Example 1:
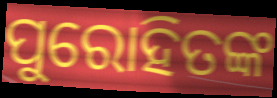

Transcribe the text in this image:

ପୁରୋହିତଙ୍କ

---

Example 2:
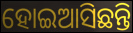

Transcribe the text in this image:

ହୋଇଆସିଛନ୍ତି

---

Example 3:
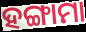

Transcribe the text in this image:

ହଙ୍ଗାମା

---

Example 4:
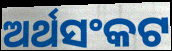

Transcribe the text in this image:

ଅର୍ଥସଂକଟ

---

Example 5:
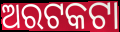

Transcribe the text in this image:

ଅରଟକଟା